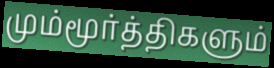
மும்மூர்த்திகளும்